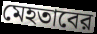
মেহতাবের